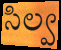
సిల్వ